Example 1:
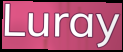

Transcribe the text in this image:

Luray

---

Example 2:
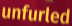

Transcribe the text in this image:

unfurled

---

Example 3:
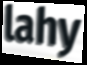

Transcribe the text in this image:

lahy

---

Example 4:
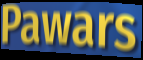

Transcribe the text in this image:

Pawars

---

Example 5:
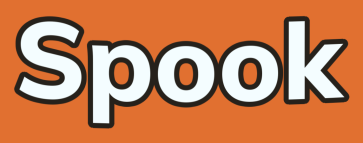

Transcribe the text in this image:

Spook